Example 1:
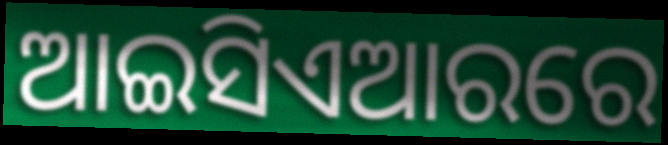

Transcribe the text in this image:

ଆଇସିଏଆରରେ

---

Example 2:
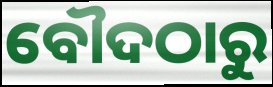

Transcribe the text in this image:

ବୌଦଠାରୁ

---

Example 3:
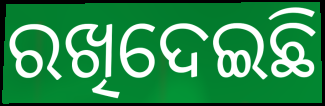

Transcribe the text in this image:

ରଖିଦେଇଛି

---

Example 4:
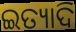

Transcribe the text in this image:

ଇତ୍ଯାଦି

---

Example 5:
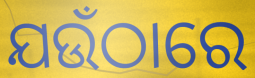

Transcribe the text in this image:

ଯଉଁଠାରେ